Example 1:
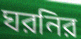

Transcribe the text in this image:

ঘরনির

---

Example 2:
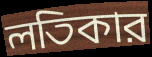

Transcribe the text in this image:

লতিকার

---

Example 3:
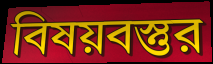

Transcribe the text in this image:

বিষয়বস্তুর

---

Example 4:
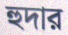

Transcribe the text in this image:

হুদার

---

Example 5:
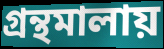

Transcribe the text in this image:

গ্রন্থমালায়